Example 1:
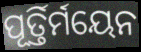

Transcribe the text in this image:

ପୂର୍ତ୍ତିର୍ମୟେନ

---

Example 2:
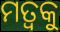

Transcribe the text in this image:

ମତ୍ୱକୁ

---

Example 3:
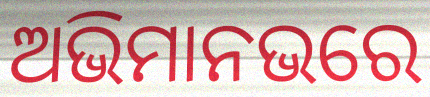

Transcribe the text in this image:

ଅଭିମାନଭରେ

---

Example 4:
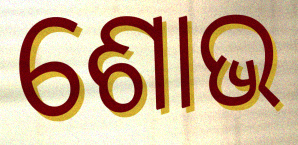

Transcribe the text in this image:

ଶୋଭ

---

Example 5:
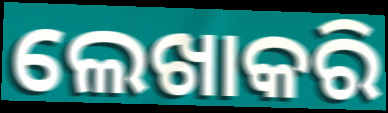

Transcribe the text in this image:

ଲେଖାକରି